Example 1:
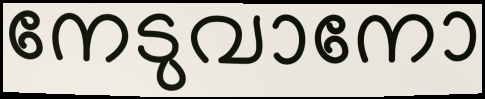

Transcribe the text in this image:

നേടുവാനോ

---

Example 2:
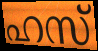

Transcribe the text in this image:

ഹസ്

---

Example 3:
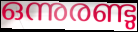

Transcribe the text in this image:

ഒന്നുരണ്ടു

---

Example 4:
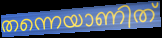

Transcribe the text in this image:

തന്നെയാണിത്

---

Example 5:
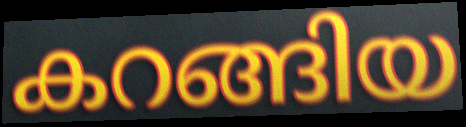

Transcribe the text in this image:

കറങ്ങിയ